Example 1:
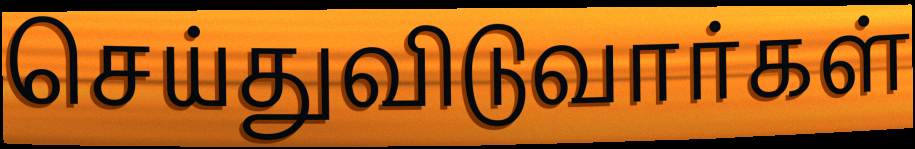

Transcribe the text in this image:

செய்துவிடுவார்கள்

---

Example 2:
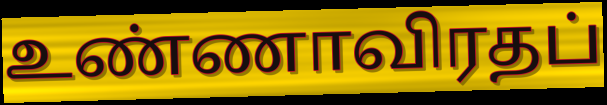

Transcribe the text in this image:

உண்ணாவிரதப்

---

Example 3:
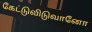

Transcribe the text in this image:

கேட்டுவிடுவானோ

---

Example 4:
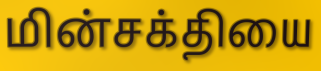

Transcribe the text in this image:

மின்சக்தியை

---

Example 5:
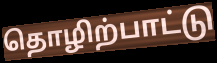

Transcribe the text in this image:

தொழிற்பாட்டு